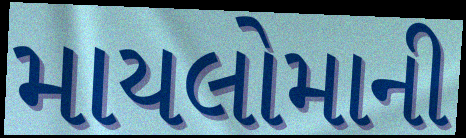
માયલોમાની